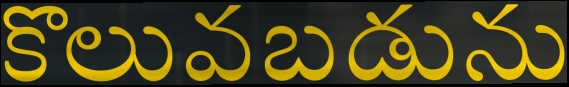
కొలువబడును